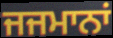
ਜਜਮਾਨਾਂ